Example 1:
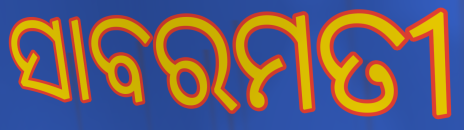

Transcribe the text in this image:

ସାବରମତୀ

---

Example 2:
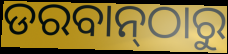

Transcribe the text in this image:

ଡରବାନ୍‌ଠାରୁ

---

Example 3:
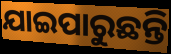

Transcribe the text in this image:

ଯାଇପାରୁଛନ୍ତି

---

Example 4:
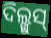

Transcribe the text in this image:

ଦିଲ୍ଖୁସ୍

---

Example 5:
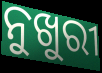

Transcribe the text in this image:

ନୁଖୁରୀ